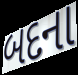
બદના